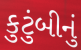
કુટુંબીનું